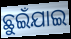
ଛୁଇଁଯାଇ